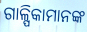
ଗାଳ୍ପିକାମାନଙ୍କ